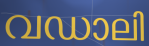
വഡാലി